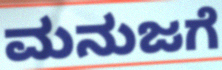
ಮನುಜಗೆ